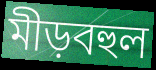
মীড়বহুল